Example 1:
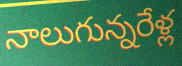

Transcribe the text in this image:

నాలుగున్నరేళ్ల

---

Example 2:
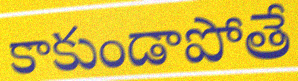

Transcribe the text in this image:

కాకుండాపోతే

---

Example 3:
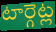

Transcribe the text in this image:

టార్గెట్ల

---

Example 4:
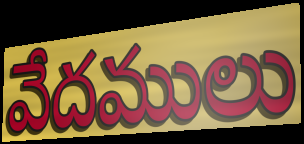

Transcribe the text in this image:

వేదములు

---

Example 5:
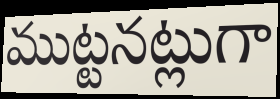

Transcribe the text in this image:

ముట్టనట్లుగా